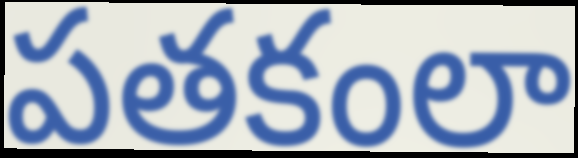
పతకంలా